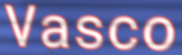
Vasco